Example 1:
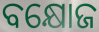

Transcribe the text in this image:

ବକ୍ଷୋଜ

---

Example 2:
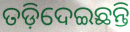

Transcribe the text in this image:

ତଡ଼ିଦେଇଛନ୍ତି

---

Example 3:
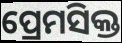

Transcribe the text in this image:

ପ୍ରେମସିକ୍ତ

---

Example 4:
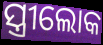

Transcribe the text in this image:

ସ୍ତ୍ରୀଲୋକ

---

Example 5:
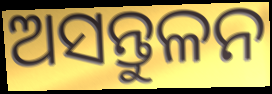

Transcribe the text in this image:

ଅସନ୍ତୁଳନ